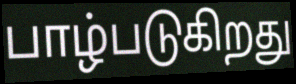
பாழ்படுகிறது